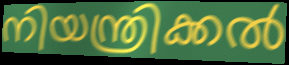
നിയന്ത്രിക്കൽ